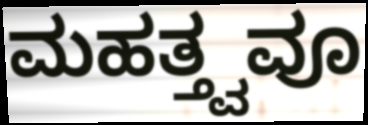
ಮಹತ್ತ್ವವೂ